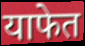
याफेत